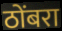
ठोंबरा